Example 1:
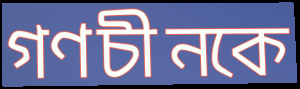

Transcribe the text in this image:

গণচীনকে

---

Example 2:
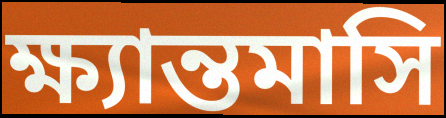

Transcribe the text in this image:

ক্ষ্যান্তমাসি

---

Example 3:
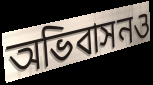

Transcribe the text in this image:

অভিবাসনও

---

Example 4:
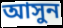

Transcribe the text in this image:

আসুন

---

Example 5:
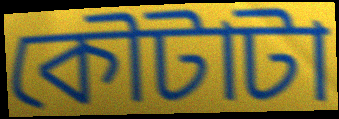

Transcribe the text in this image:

কৌটাটা